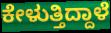
ಕೇಳುತ್ತಿದ್ದಾಳೆ